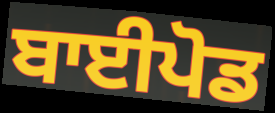
ਬਾਈਪੋਡ